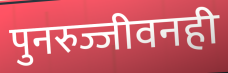
पुनरुज्जीवनही